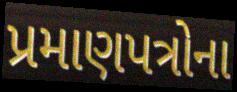
પ્રમાણપત્રોના